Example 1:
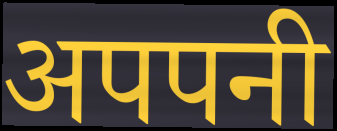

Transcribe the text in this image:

अपपनी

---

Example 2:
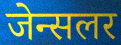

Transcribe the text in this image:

जेन्सलर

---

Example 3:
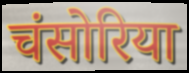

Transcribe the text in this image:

चंसोरिया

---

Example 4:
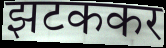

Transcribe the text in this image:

झटककर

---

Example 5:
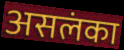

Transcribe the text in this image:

असलंका